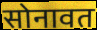
सोनावत